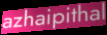
azhaipithal